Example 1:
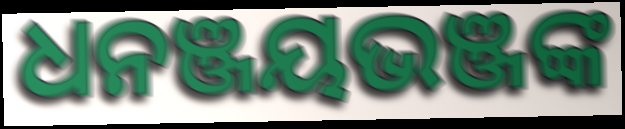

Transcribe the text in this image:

ଧନଞ୍ଜୟଭଞ୍ଜଙ୍କ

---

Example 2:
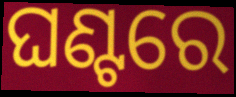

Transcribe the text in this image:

ଘଣ୍ଟରେ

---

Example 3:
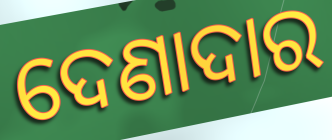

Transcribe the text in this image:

ଦେଣାଦାର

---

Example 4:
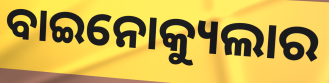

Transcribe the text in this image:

ବାଇନୋକ୍ୟୁଲାର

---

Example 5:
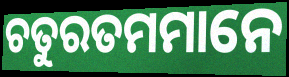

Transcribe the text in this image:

ଚତୁରତମମାନେ